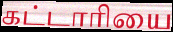
கட்டாரியை